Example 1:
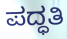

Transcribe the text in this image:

ಪದ್ಧತಿ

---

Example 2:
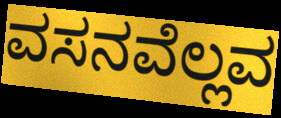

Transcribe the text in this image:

ವಸನವೆಲ್ಲವ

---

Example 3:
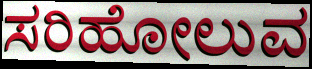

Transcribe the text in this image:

ಸರಿಹೋಲುವ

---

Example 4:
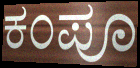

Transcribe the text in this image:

ಕಂಪೂ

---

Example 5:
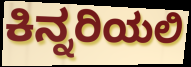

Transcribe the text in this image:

ಕಿನ್ನರಿಯಲಿ